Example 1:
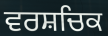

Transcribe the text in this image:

ਵਰਸ਼ਚਿਕ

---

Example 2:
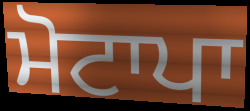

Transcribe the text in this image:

ਮੋਟਾਪਾ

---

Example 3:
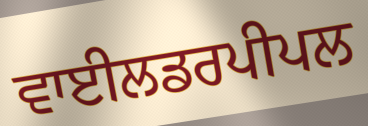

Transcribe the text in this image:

ਵਾਈਲਡਰਪੀਪਲ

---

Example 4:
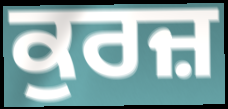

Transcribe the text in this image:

ਕੁਰਜ਼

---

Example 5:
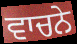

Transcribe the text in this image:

ਵਾਚਨੇ